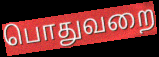
பொதுவறை